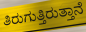
ತಿರುಗುತ್ತಿರುತ್ತಾನೆ